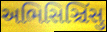
અભિસિઞ્ચિંસુ